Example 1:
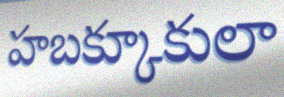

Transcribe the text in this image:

హబక్కూకులా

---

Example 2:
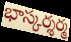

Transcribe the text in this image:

భాస్కర్శర్మ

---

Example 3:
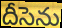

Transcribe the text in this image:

దీసెను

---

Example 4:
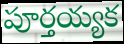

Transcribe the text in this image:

పూర్తయ్యక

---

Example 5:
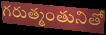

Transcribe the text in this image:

గరుత్మంతునితో